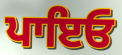
ਪਾਇਓ